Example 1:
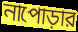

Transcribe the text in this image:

নাপোড়ার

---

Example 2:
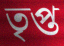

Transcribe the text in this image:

তৃপ্ত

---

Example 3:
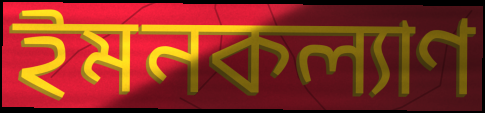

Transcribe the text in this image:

ইমনকল্যাণ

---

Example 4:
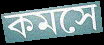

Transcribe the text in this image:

কমসে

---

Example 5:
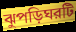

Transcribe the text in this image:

ঝুপড়িঘরটি